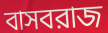
বাসবরাজ